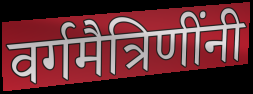
वर्गमैत्रिणींनी